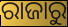
ରାଜାରୁ